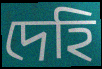
দেহি